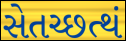
સેતચ્છત્થં